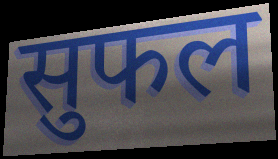
सुफल